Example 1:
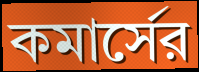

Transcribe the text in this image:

কমার্সের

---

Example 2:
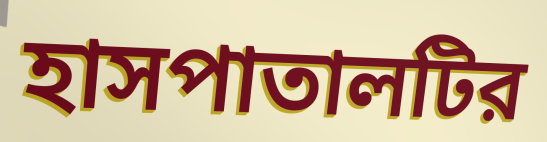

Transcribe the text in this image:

হাসপাতালটির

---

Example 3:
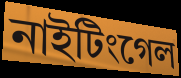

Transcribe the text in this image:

নাইটিংগেল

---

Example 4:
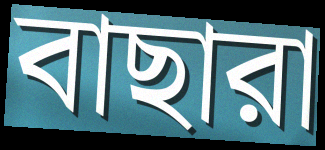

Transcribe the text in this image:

বাছারা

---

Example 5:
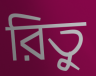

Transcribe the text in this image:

রিতু